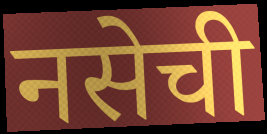
नसेची